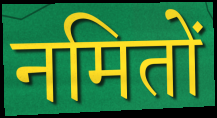
नमितों